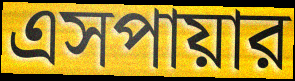
এসপায়ার